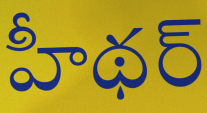
హీథర్